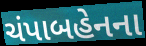
ચંપાબહેનના